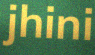
jhini